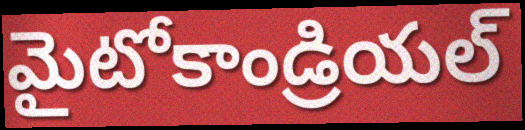
మైటోకాండ్రియల్